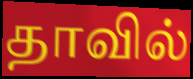
தாவில்